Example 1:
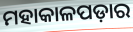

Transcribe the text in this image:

ମହାକାଳପଡ଼ାର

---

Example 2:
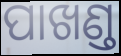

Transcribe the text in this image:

ପାଖଣ୍ଡ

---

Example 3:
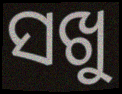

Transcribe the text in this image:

ସଖୁ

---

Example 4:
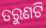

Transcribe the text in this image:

ତରୁଣଟି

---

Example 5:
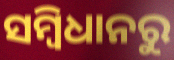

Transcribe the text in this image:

ସମ୍ବିଧାନରୁ